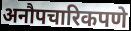
अनौपचारिकपणे